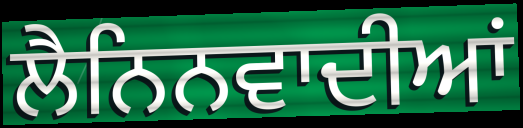
ਲੈਨਿਨਵਾਦੀਆਂ